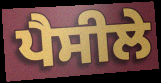
ਪੈਸੀਲੇ